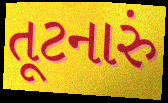
તૂટનારું